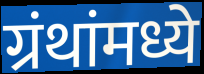
ग्रंथांमध्ये